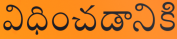
విధించడానికి